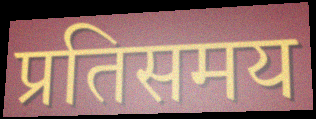
प्रतिसमय